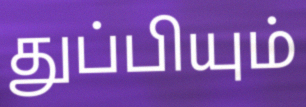
துப்பியும்